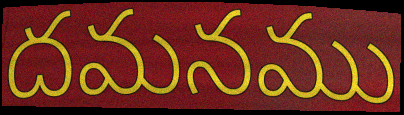
దమనము